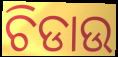
ଚିଡାଉ